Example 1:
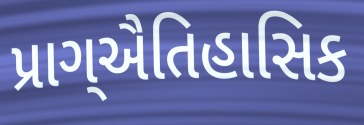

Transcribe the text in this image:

પ્રાગ્ઐતિહાસિક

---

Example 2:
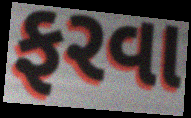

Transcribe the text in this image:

ફરવા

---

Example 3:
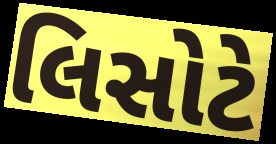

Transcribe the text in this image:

લિસોટે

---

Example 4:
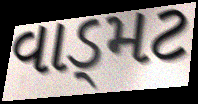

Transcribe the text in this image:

વાડ્મટ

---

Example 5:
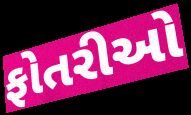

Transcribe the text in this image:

ફોતરીઓ